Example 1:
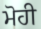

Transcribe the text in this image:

ਮੋਹੀ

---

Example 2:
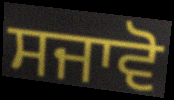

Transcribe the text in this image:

ਸਜਾਵੋ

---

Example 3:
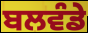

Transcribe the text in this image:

ਬਲਵੰਡੇ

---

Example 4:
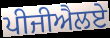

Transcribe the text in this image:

ਪੀਜੀਐਲਏ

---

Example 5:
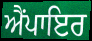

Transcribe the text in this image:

ਐਂਪਾਇਰ